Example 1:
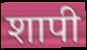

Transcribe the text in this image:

शापी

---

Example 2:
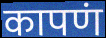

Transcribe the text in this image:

कापणं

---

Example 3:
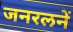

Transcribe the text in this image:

जनरलनें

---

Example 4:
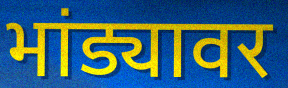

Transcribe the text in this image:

भांड्यावर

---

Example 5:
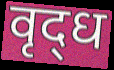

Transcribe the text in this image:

वृद्ध